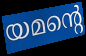
യമന്റെ